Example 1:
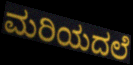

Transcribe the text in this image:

ಮರಿಯದಲೆ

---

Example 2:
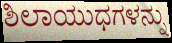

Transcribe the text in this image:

ಶಿಲಾಯುಧಗಳನ್ನು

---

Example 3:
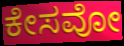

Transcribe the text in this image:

ಕೇಸವೋ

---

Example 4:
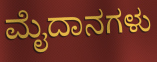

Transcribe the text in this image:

ಮೈದಾನಗಳು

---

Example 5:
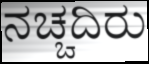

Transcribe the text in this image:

ನಚ್ಚದಿರು